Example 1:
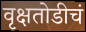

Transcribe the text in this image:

वृक्षतोडीचं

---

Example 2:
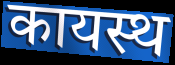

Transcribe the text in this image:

कायस्थ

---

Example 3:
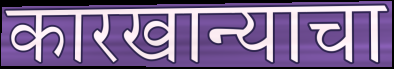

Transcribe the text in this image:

कारखान्याचा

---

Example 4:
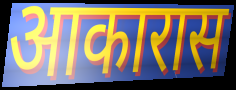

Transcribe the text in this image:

आकारास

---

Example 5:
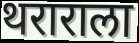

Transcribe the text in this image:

थराराला